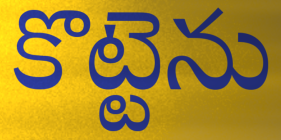
కొట్టెను